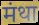
मंथा